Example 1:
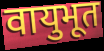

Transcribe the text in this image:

वायुभूत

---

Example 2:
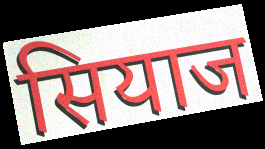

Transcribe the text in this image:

सियाज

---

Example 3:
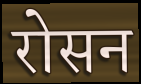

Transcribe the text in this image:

रोसन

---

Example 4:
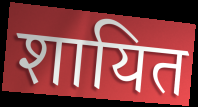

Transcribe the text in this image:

शायित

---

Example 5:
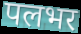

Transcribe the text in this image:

पलभर